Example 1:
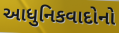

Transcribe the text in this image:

આધુનિકવાદોનો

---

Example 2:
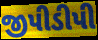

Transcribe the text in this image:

જીપીડીપી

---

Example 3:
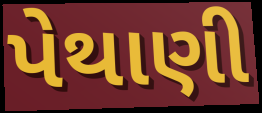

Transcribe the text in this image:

પેથાણી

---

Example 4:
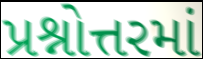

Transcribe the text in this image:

પ્રશ્નોત્તરમાં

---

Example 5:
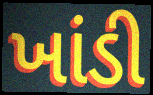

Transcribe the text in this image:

ખાંડી